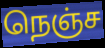
நெஞ்ச